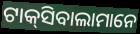
ଟାକ୍‌ସିବାଲାମାନେ